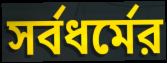
সর্বধর্মের